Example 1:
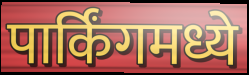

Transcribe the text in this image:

पार्किंगमध्ये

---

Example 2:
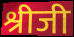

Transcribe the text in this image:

श्रीजी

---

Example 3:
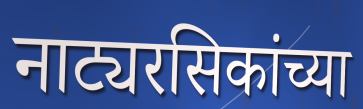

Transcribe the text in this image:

नाट्यरसिकांच्या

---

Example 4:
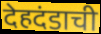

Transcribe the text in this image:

देहदंडाची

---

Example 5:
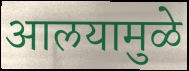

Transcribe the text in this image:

आलयामुळे